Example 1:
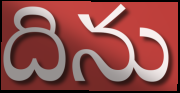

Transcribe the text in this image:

దిను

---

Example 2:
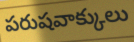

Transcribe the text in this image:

పరుషవాక్కులు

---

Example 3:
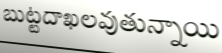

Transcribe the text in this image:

బుట్టదాఖలవుతున్నాయి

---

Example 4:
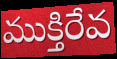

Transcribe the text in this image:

ముక్తిరేవ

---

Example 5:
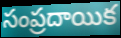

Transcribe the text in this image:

సంప్రదాయిక